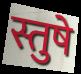
स्तुषे